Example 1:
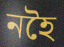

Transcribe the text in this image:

নহৈ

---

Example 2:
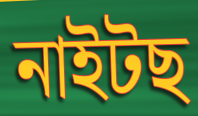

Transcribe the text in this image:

নাইটছ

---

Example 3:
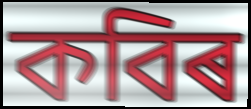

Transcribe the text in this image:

কবিৰ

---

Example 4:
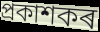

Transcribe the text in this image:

প্ৰকাশকৰ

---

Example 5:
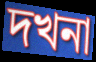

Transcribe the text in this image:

দখনা